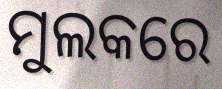
ମୁଲକରେ